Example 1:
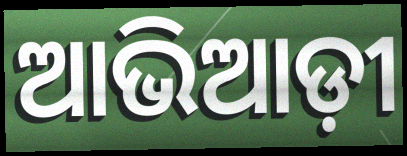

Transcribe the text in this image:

ଆଭିଆଡ଼ୀ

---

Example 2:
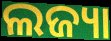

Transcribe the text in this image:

ଲଜ୍ୟା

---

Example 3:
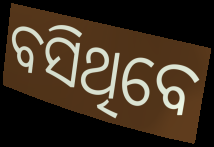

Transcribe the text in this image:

ବସିଥିବେ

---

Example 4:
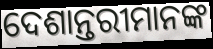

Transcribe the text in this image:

ଦେଶାନ୍ତରୀମାନଙ୍କ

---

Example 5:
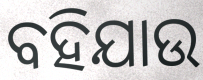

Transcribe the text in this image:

ବହିଯାଉ